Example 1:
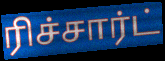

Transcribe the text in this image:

ரிச்சார்ட்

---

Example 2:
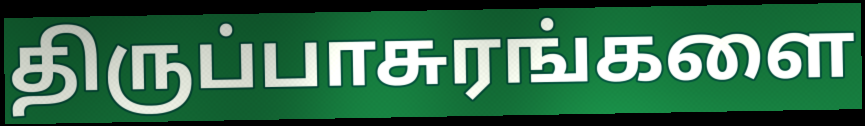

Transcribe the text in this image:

திருப்பாசுரங்களை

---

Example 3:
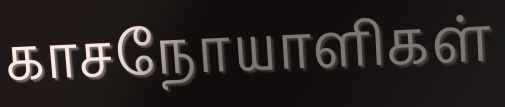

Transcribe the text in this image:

காசநோயாளிகள்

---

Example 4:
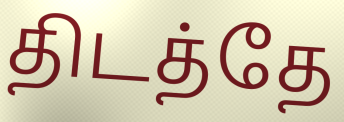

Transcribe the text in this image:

திடத்தே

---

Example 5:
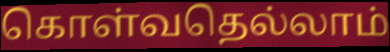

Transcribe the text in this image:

கொள்வதெல்லாம்